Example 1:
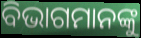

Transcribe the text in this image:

ବିଭାଗମାନଙ୍କୁ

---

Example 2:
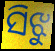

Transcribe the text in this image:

ସିଝୁ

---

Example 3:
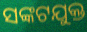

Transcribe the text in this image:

ସଙ୍କଟଯୁକ୍ତ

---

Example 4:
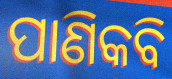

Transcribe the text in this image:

ପାଣିକବି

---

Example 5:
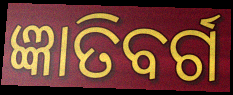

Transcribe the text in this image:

ଜ୍ଞାତିବର୍ଗ